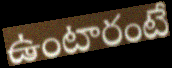
ఉంటారంటే